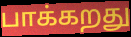
பாக்கறது